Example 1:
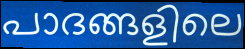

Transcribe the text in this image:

പാദങ്ങളിലെ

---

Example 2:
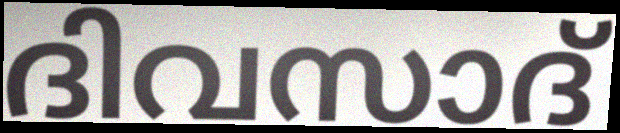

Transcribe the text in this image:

ദിവസാദ്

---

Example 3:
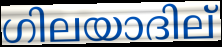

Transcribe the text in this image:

ഗിലയാദില്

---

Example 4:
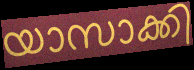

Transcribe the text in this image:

യാസാക്കി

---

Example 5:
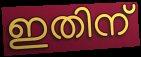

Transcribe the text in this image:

ഇതിന്